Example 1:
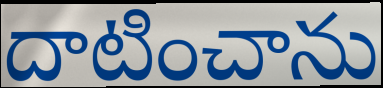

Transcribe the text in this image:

దాటించాను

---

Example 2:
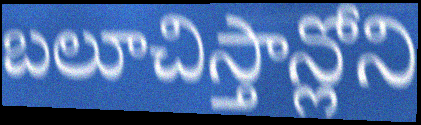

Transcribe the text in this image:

బలూచిస్తాన్లోని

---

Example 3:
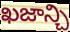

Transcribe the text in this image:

ఖజాన్చి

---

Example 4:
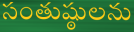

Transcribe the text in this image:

సంతుష్ఠులను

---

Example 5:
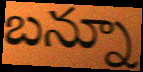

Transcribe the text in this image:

బన్నూ